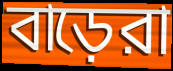
বাড়েরা